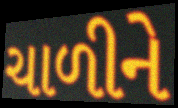
ચાળીને